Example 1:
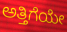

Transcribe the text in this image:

ಅತ್ತಿಗೆಯೇ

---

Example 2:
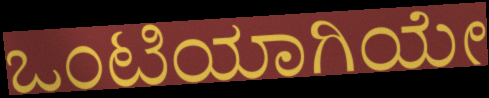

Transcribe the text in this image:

ಒಂಟಿಯಾಗಿಯೇ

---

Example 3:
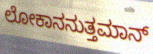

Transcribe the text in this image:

ಲೋಕಾನನುತ್ತಮಾನ್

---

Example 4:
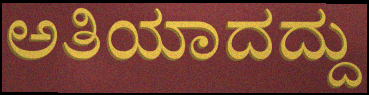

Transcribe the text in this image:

ಅತಿಯಾದದ್ದು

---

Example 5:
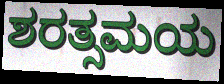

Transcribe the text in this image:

ಶರತ್ಸಮಯ